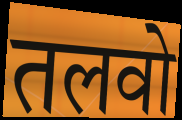
तलवो